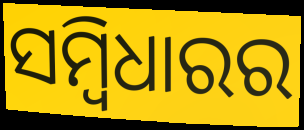
ସମ୍ବିଧାରର